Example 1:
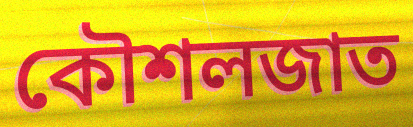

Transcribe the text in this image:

কৌশলজাত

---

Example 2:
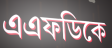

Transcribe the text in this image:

এএফডিকে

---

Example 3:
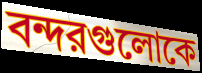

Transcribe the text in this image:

বন্দরগুলোকে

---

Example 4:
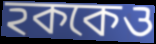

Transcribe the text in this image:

হককেও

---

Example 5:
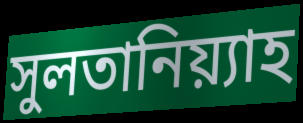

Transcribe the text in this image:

সুলতানিয়্যাহ